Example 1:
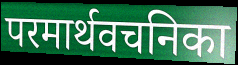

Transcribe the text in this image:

परमार्थवचनिका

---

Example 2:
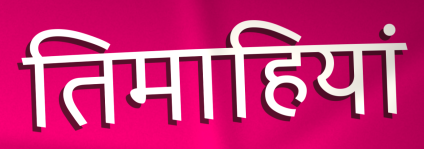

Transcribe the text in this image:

तिमाहियां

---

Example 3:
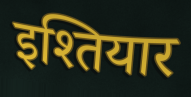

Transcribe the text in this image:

इश्तियार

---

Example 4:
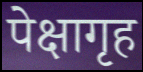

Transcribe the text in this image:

पेक्षागृह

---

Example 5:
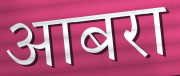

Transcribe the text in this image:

आबरा